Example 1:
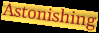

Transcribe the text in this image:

Astonishing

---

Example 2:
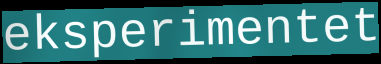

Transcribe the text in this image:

eksperimentet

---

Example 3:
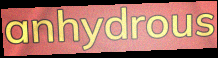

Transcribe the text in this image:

anhydrous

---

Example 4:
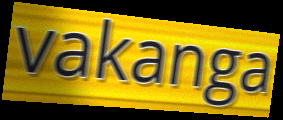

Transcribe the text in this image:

vakanga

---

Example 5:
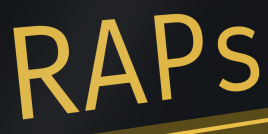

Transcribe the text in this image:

RAPs